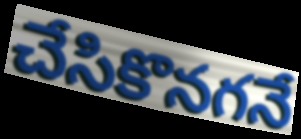
చేసికొనగనే